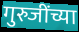
गुरुजींच्या